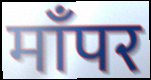
माँपर